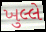
ખુલ્લે